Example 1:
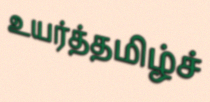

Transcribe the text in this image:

உயர்த்தமிழ்ச்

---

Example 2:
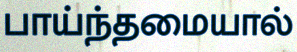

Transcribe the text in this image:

பாய்ந்தமையால்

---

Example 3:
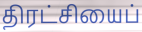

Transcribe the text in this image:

திரட்சியைப்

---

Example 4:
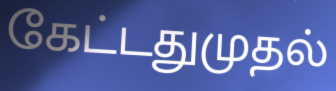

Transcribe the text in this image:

கேட்டதுமுதல்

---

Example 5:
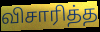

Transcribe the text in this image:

விசாரித்த